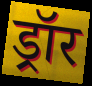
ड्रॉर